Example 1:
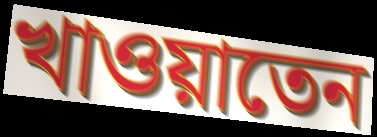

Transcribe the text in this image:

খাওয়াতেন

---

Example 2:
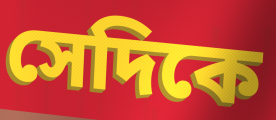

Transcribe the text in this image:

সেদিকে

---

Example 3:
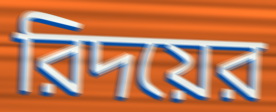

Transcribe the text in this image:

রিদয়ের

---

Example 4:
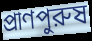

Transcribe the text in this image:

প্রাণপুরুষ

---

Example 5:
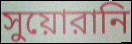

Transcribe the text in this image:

সুয়োরানি